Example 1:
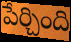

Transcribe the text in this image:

పేర్చింది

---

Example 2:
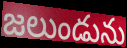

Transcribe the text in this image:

జలుండును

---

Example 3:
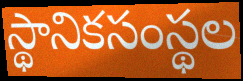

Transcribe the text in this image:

స్థానికసంస్థల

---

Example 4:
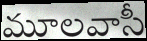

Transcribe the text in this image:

మూలవాసీ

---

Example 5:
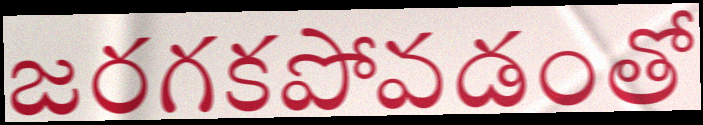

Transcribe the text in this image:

జరగకపోవడంతో